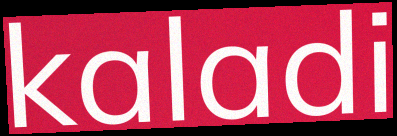
kaladi